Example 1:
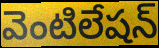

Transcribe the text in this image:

వెంటిలేషన్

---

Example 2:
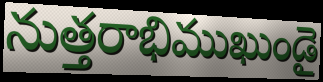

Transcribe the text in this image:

నుత్తరాభిముఖుండై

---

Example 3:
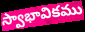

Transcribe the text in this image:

స్వాభావికము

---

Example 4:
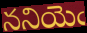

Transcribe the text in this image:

ననియెఁ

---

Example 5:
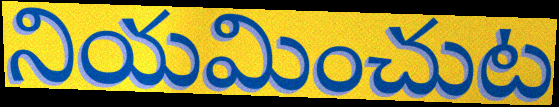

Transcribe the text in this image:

నియమించుట